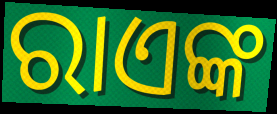
ରାଏଙ୍କ